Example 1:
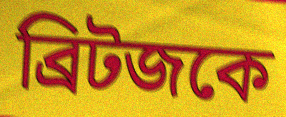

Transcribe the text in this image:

ব্রিটজকে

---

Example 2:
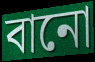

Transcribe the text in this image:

বানো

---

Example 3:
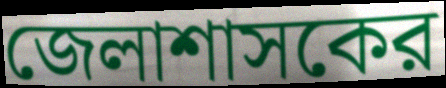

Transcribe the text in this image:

জেলাশাসকের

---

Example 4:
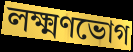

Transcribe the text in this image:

লক্ষ্মণভোগ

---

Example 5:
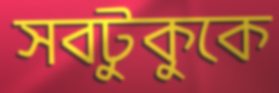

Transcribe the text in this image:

সবটুকুকে